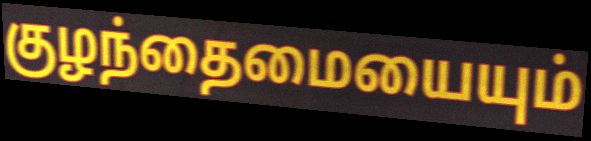
குழந்தைமையையும்